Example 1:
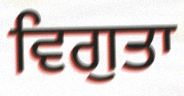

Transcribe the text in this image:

ਵਿਗੁਤਾ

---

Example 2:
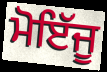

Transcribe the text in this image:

ਮੋਇੱਜੂ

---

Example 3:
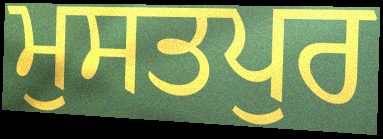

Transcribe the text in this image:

ਮੁਸਤਪੁਰ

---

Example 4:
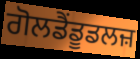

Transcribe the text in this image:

ਗੋਲਡੈਂਡੂਡਲਜ਼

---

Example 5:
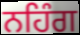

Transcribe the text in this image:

ਨਹਿੰਗ